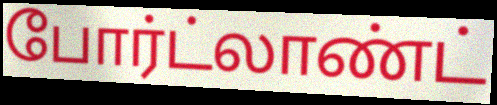
போர்ட்லாண்ட்